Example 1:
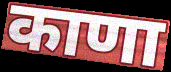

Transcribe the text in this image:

काणा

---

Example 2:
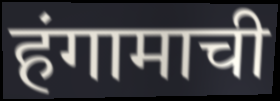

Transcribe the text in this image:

हंगामाची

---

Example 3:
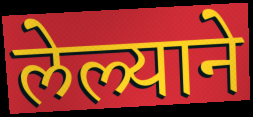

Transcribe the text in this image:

लेल्याने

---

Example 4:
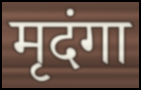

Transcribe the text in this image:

मृदंगा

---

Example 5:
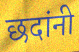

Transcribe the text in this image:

छदांनी